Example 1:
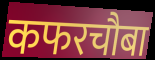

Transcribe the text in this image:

कफरचौबा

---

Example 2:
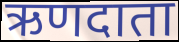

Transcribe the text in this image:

ऋणदाता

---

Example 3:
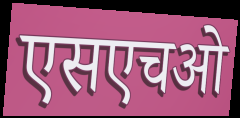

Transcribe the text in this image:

एसएचओ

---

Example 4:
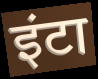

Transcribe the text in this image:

इंटा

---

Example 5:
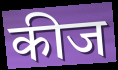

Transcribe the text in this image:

कीज